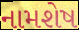
નામશેષ